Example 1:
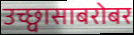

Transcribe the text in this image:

उच्छ्वासाबरोबर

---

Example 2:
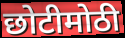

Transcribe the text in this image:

छोटीमोठी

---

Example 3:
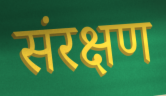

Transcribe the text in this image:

संरक्षण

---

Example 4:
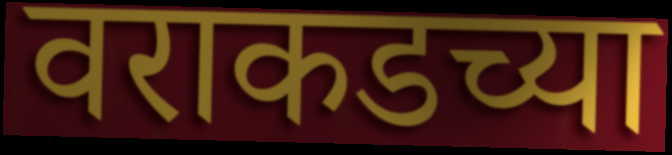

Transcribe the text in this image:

वराकडच्या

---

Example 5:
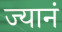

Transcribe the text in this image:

ज्यानं